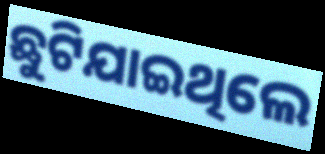
ଛୁଟିଯାଇଥିଲେ